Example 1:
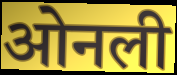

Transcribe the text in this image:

ओनली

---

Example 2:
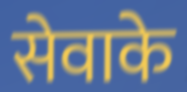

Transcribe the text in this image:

सेवाके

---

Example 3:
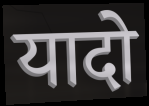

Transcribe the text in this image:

यादो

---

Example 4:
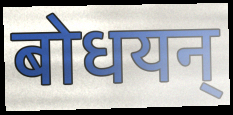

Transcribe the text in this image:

बोधयन्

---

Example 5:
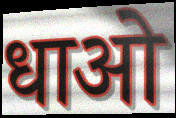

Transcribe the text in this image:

धाओ